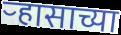
ऱ्हासाच्या